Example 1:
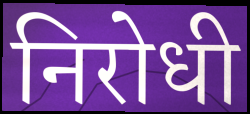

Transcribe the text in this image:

निरोधी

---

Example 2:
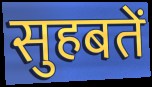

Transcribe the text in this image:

सुहबतें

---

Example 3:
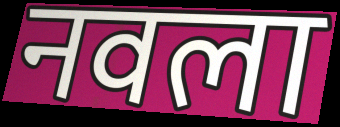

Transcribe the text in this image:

नवला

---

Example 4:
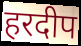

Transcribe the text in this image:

हरदीप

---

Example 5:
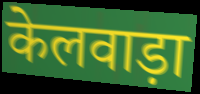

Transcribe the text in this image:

केलवाड़ा